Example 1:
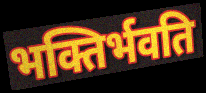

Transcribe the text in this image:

भक्तिर्भवति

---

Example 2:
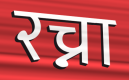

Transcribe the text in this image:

रच्ना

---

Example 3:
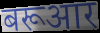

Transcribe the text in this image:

बरूआर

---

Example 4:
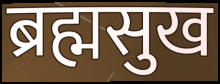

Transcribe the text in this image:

ब्रह्मसुख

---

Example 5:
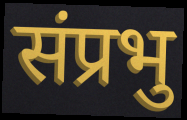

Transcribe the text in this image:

संप्रभु